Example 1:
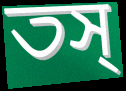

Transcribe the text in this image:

তস্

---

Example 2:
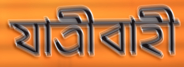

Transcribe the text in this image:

যাত্ৰীবাহী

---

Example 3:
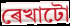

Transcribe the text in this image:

ৰেখাটো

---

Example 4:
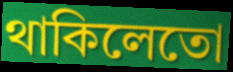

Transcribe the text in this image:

থাকিলেতো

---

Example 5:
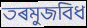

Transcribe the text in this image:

তৰমুজবিধ